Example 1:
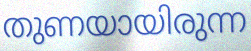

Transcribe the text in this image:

തുണയായിരുന്ന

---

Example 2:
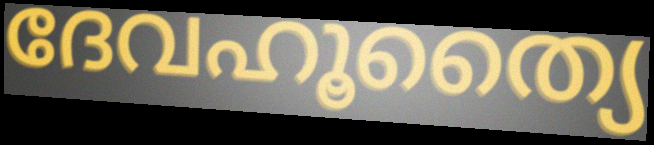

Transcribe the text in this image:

ദേവഹൂത്യൈ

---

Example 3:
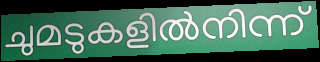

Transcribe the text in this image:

ചുമടുകളിൽനിന്ന്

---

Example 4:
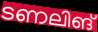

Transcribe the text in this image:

ടണലിങ്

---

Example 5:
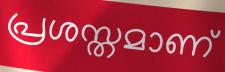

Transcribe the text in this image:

പ്രശസ്തമാണ്